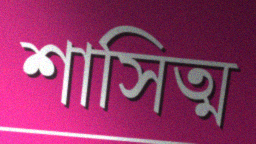
শাসিত্ম